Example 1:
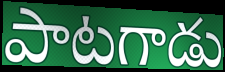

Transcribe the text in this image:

పాటగాడు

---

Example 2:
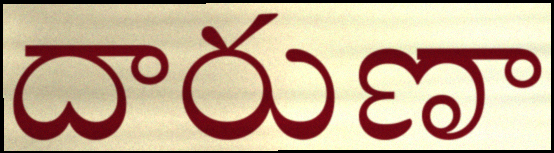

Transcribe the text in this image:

దారుణా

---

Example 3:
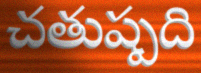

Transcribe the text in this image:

చతుష్పది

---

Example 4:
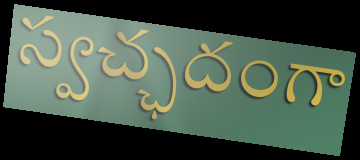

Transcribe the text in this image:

స్వచ్ఛదంగా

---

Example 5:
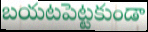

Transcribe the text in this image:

బయటపెట్టకుండా